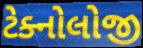
ટેક્નોલોજી